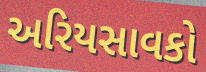
અરિયસાવકો